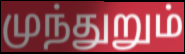
முந்துறும்